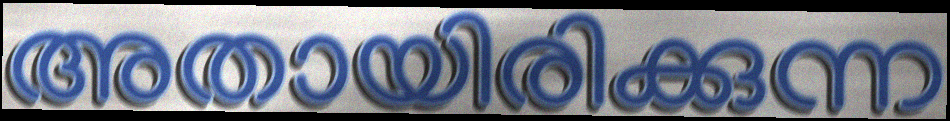
അതായിരിക്കുന്ന